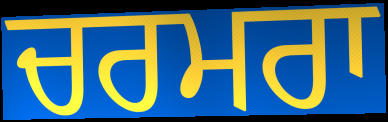
ਚਰਮਰਾ